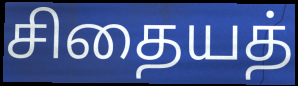
சிதையத்